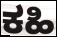
ಕಹಿ